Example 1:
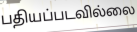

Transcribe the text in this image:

பதியப்படவில்லை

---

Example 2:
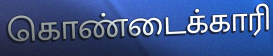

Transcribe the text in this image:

கொண்டைக்காரி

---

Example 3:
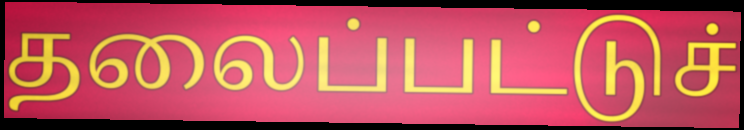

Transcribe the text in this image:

தலைப்பட்டுச்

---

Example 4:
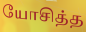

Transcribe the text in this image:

யோசித்த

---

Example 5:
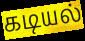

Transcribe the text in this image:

கடியல்